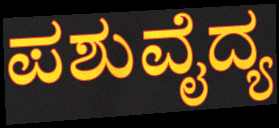
ಪಶುವೈದ್ಯ